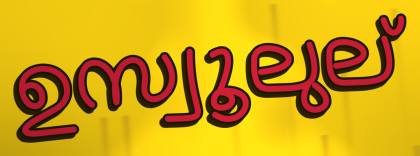
ഉസ്വൂലുല്